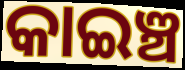
କାଇଞ୍ଚ